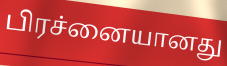
பிரச்னையானது